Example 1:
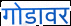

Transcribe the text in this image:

गोडावर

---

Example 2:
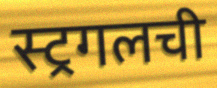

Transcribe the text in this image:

स्ट्रगलची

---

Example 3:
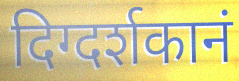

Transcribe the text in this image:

दिग्दर्शकानं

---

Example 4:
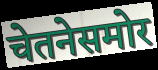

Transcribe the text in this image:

चेतनेसमोर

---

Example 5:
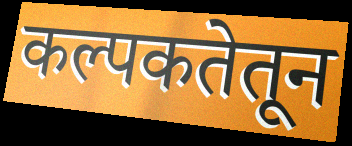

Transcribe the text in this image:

कल्पकतेतून